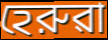
হেৰুৱা